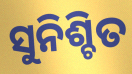
ସୁନିଶ୍ଚିତ